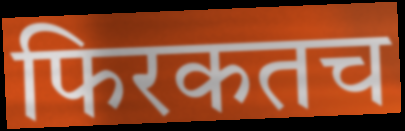
फिरकतच